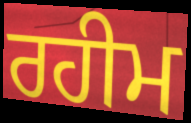
ਰਹੀਮ